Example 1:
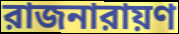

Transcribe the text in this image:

রাজনারায়ণ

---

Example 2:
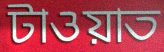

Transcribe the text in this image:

টাওয়াত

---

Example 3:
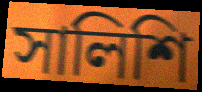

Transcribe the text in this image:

সালিশি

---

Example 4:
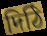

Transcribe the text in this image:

দিঠি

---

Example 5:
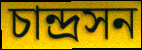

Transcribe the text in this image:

চান্দ্রসন